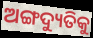
ଅଙ୍ଗଦ୍ୟୁତିକୁ